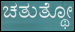
ಚತುತ್ಥೋ